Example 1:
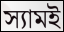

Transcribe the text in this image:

স্যামই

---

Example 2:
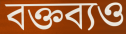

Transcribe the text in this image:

বক্তব্যও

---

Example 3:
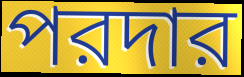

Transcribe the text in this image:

পরদার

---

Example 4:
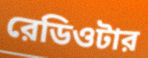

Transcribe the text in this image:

রেডিওটার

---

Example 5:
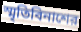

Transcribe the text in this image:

স্মৃতিবিনাশের